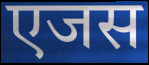
एजस